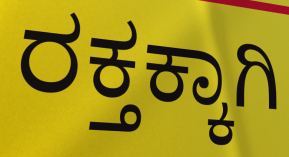
ರಕ್ತಕ್ಕಾಗಿ